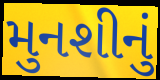
મુનશીનું